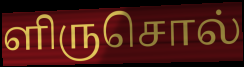
ளிருசொல்